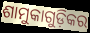
ଶାମୁକାଗୁଡ଼ିକର